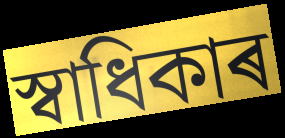
স্বাধিকাৰ